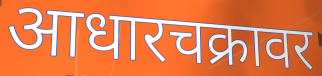
आधारचक्रावर